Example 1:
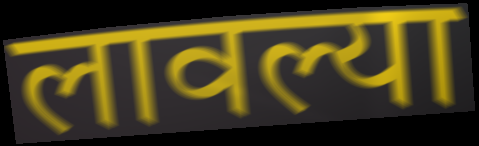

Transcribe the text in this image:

लावल्या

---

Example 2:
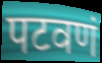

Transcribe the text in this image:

पटवणं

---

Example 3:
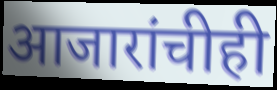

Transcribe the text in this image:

आजारांचीही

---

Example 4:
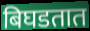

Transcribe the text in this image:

बिघडतात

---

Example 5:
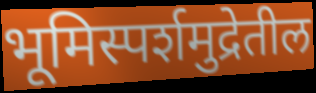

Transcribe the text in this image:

भूमिस्पर्शमुद्रेतील